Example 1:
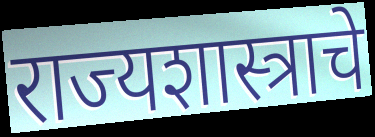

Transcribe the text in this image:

राज्यशास्त्राचे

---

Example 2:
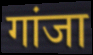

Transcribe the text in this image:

गांजा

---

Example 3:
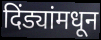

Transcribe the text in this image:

दिंड्यांमधून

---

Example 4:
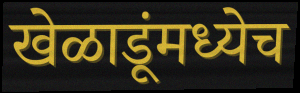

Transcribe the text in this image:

खेळाडूंमध्येच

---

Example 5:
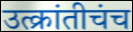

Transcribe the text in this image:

उत्क्रांतीचंच